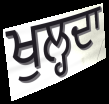
ਖੁਲ੍ਹਦਾ